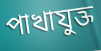
পাখাযুক্ত